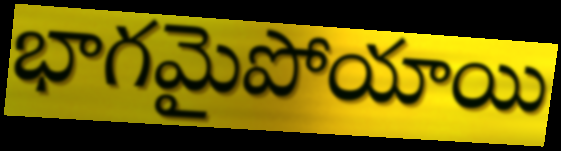
భాగమైపోయాయి